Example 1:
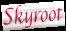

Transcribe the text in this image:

Skyroot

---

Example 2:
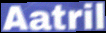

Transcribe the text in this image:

Aatril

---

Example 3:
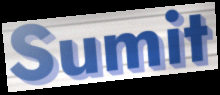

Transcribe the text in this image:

Sumit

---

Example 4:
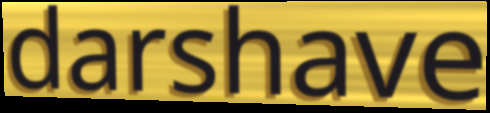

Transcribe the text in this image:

darshave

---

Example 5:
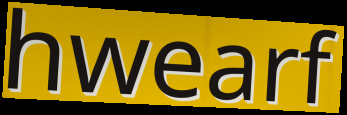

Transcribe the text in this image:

hwearf